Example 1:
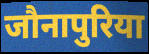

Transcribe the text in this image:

जौनापुरिया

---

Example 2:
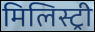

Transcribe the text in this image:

मिलिस्ट्री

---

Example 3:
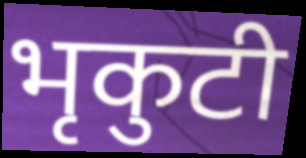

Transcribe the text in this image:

भृकुटी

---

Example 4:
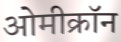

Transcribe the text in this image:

ओमीक्रॉन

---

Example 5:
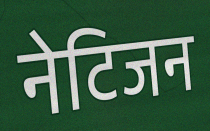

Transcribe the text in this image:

नेटिजन